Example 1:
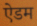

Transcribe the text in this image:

ऐडम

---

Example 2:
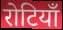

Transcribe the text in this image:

रोटियाँ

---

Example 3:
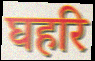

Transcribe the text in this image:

घहरि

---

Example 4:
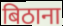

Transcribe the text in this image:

बिठाना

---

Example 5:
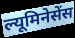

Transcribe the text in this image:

ल्यूमिनेसेंस